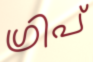
ഗ്രിപ്